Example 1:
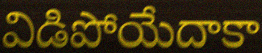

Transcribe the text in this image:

విడిపోయేదాకా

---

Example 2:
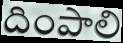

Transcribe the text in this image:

దింపాలి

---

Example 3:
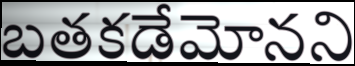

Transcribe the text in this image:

బతకడేమోనని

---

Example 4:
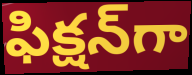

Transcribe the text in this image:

ఫిక్షన్‌గా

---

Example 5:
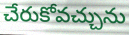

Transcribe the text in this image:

చేరుకోవచ్చును